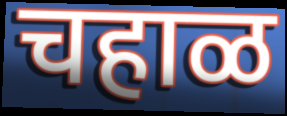
चहाळ